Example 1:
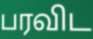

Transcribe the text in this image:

பரவிட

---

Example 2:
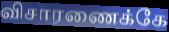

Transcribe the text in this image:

விசாரணைக்கே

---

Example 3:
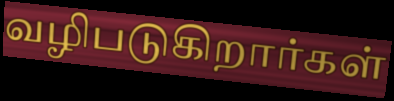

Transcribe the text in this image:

வழிபடுகிறார்கள்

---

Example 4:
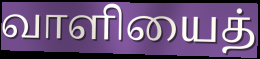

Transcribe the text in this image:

வாளியைத்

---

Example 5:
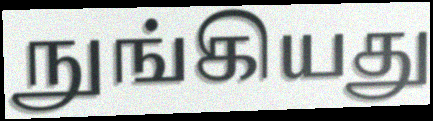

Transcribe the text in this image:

நுங்கியது